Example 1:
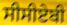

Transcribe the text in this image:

ਸੀਸੀਏਬੀ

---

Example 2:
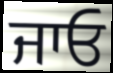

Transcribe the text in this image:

ਜਾਓ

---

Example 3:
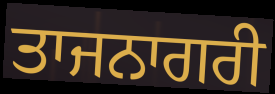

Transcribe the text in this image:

ਤਾਜਨਾਗਰੀ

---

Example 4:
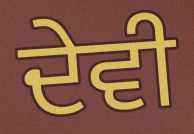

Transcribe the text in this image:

ਦੇਵੀ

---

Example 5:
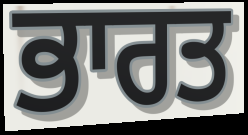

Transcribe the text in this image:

ਭਾਰਤ